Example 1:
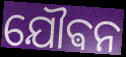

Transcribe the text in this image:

ଯୌଵନ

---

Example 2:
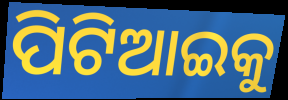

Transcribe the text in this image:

ପିଟିଆଇକୁ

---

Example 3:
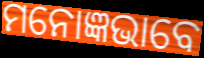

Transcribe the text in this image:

ମନୋଜ୍ଞଭାବେ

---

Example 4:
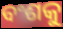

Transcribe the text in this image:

ବଂଶକୁ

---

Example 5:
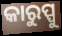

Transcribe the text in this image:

କାରୁପ୍ପୁ